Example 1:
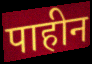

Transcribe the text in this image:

पाहीन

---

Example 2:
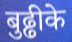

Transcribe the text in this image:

बुढ्ढीके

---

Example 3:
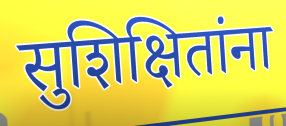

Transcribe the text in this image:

सुशिक्षितांना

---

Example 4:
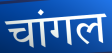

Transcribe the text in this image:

चांगल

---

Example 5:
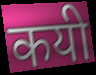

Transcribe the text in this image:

कयी